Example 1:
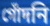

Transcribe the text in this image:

গোঁদনি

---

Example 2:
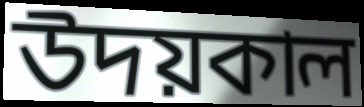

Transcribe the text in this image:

উদয়কাল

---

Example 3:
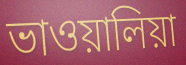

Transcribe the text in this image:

ভাওয়ালিয়া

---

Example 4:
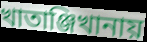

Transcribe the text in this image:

খাতাঞ্জিখানায়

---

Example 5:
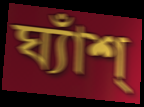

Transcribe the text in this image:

ঘ্যাঁশ্